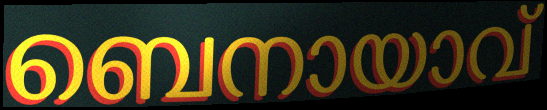
ബെനായാവ്